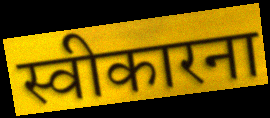
स्वीकारना